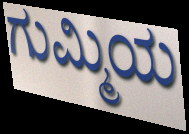
ಗುಮ್ಮಿಯ